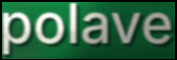
polave